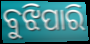
ବୁଝିପାରି